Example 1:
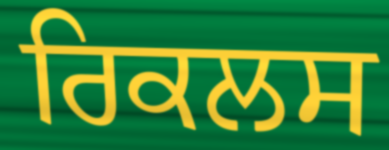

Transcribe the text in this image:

ਰਿਕਲਸ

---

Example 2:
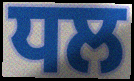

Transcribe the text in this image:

ਧਲ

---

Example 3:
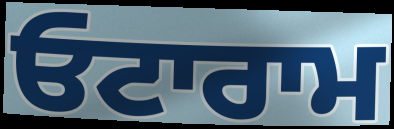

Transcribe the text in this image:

ਓਟਾਰਾਮ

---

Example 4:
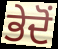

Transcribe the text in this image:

ਭੇਦੋਂ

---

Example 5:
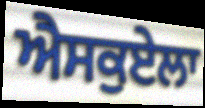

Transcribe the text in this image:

ਐਸਕੁਏਲਾ